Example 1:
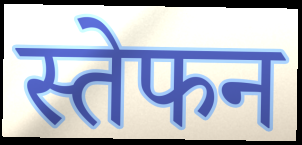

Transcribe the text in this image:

स्तेफन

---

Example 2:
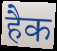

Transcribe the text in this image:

हैक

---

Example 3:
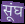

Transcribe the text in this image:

सूंघ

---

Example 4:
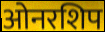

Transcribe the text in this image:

ओनरशिप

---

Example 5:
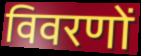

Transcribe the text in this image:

विवरणों